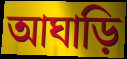
আঘাড়ি